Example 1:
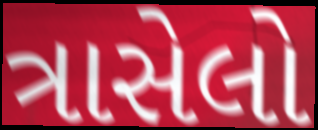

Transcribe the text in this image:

ત્રાસેલો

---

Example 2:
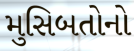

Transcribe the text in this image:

મુસિબતોનો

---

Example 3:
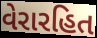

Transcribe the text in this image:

વેરારહિત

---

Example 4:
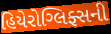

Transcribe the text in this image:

હિયેરોગ્લિફ્સની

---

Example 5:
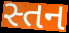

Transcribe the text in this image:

સ્તન